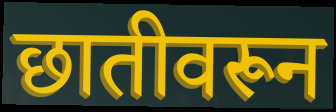
छातीवरून